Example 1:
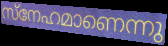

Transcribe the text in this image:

സ്നേഹമാണെന്നു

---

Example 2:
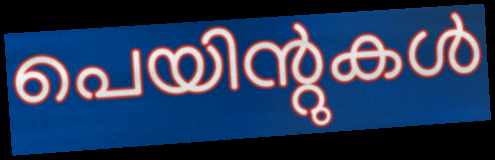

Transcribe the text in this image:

പെയിന്റുകൾ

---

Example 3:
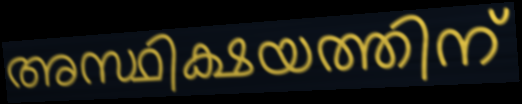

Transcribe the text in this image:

അസ്ഥിക്ഷയത്തിന്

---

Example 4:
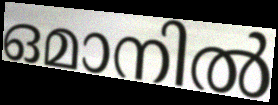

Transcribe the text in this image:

ഒമാനിൽ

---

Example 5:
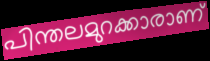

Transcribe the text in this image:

പിന്തലമുറക്കാരാണ്